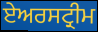
ਏਅਰਸਟ੍ਰੀਮ